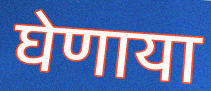
घेणाया